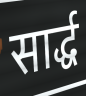
सार्द्ध